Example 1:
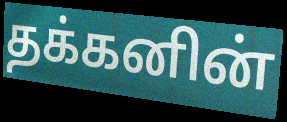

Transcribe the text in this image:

தக்கனின்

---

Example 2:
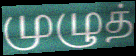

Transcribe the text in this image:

முழுத்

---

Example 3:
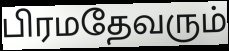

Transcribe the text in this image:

பிரமதேவரும்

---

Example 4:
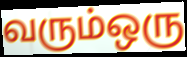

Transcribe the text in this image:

வரும்ஒரு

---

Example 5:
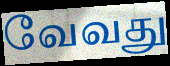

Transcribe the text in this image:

வேவது